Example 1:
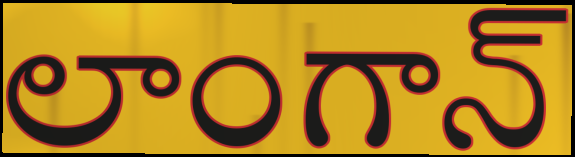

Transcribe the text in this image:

లాంగాన్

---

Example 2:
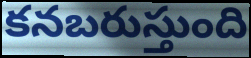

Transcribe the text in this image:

కనబరుస్తుంది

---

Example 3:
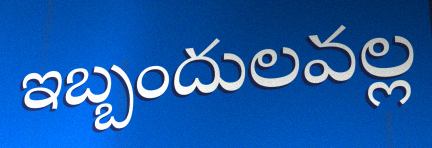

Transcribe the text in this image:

ఇబ్బందులవల్ల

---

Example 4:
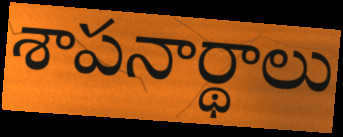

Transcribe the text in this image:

శాపనార్థాలు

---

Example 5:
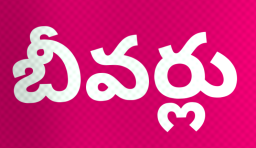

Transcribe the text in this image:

బీవర్లు